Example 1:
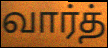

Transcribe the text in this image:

வார்த்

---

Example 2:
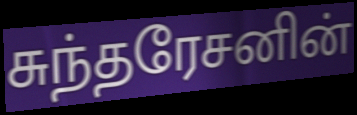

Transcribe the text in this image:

சுந்தரேசனின்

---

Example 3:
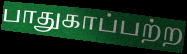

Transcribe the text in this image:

பாதுகாப்பற்ற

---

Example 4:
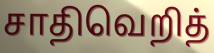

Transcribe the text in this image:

சாதிவெறித்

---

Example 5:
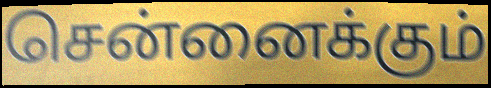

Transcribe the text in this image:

சென்னைக்கும்